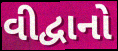
વીદ્વાનો